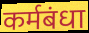
कर्मबंधा